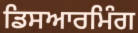
ਡਿਸਆਰਮਿੰਗ